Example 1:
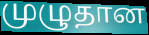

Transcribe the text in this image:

முழுதான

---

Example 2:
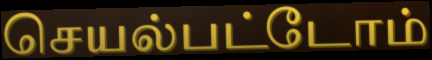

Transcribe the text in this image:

செயல்பட்டோம்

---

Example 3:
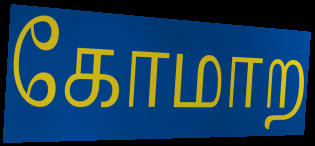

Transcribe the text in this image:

கோமாற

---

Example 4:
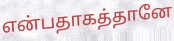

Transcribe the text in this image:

என்பதாகத்தானே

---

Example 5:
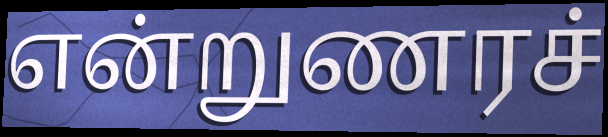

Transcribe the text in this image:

என்றுணரச்